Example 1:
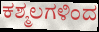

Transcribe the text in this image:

ಕಶ್ಮಲಗಳಿಂದ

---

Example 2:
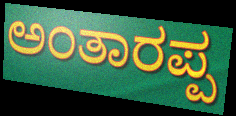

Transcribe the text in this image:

ಅಂತಾರಪ್ಪ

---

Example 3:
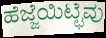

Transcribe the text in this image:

ಹೆಜ್ಜೆಯಿಟ್ಟೆವು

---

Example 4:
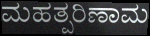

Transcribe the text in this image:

ಮಹತ್ಪರಿಣಾಮ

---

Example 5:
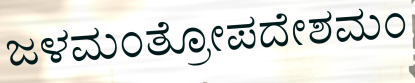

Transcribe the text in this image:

ಜಳಮಂತ್ರೋಪದೇಶಮಂ